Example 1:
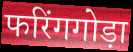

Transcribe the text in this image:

फरिंगगोड़ा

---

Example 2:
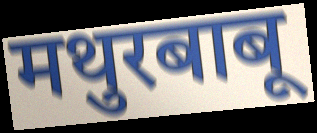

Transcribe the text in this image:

मथुरबाबू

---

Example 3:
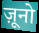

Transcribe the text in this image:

ज़ूनो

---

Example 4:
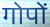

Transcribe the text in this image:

गोपों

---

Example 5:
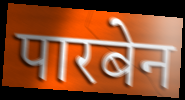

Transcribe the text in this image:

पारबेन